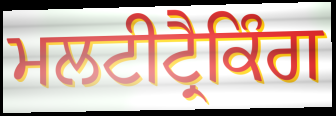
ਮਲਟੀਟ੍ਰੈਕਿੰਗ